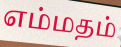
எம்மதம்